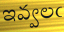
ఇవ్వలఁ